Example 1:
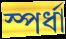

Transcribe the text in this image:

স্পর্ধা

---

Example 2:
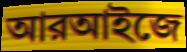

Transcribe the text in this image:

আরআইজে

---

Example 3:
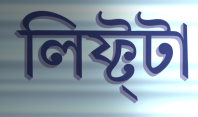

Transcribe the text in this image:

লিফ্ট্টা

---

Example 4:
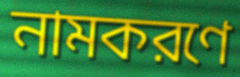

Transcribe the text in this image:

নামকরণে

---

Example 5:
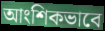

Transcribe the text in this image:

আংশিকভাবে